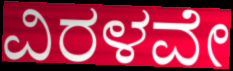
ವಿರಳವೇ